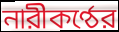
নারীকণ্ঠের